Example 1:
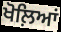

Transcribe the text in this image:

ਖੋਲ਼ਿਆਂ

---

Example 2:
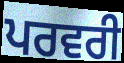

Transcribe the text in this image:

ਪਰਵਰੀ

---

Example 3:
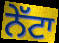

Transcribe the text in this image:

ਨੇੱਟਾ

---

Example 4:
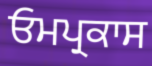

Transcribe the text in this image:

ਓਮਪ੍ਰਕਾਸ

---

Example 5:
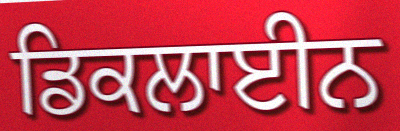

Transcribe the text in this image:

ਡਿਕਲਾਈਨ